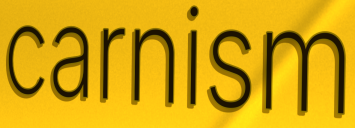
carnism